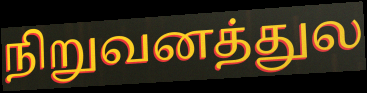
நிறுவனத்துல